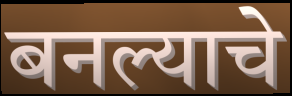
बनल्याचे